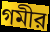
গমীর